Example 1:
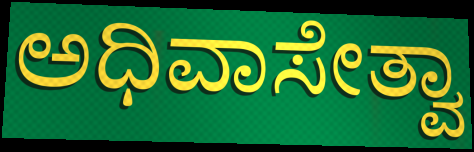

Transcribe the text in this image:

ಅಧಿವಾಸೇತ್ವಾ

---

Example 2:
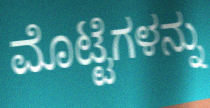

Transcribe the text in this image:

ಮೊಟ್ಟೆಗಳನ್ನು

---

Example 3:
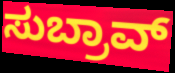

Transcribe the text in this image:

ಸುಬ್ರಾವ್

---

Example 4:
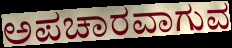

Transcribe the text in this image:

ಅಪಚಾರವಾಗುವ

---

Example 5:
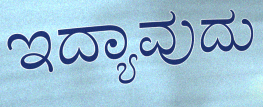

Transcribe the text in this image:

ಇದ್ಯಾವುದು